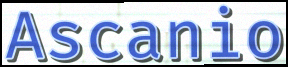
Ascanio